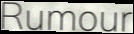
Rumour